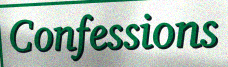
Confessions